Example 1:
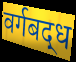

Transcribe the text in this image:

वर्गबद्ध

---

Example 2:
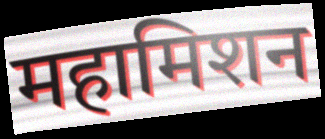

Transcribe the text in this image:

महामिशन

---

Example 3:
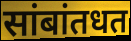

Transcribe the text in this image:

सांबांतधत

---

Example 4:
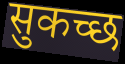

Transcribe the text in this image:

सुकच्छ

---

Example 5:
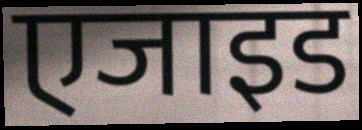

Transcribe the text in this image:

एजाइड